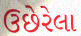
ઉછેરેલા